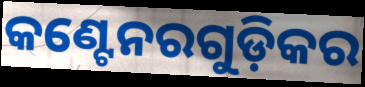
କଣ୍ଟେନରଗୁଡ଼ିକର